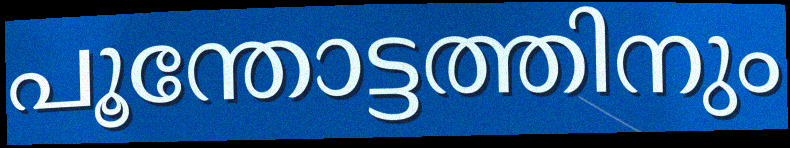
പൂന്തോട്ടത്തിനും